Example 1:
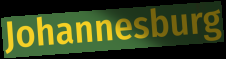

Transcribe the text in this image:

Johannesburg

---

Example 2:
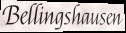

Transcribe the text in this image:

Bellingshausen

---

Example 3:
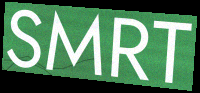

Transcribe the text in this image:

SMRT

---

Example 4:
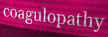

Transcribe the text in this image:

coagulopathy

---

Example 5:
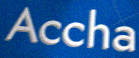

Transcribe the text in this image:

Accha